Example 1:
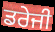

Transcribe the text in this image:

ਡਰੇਜੀ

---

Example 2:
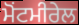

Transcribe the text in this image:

ਮੋਂਟਮੀਰੇਲ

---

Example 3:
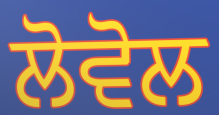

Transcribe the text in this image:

ਲੋਵੋਲ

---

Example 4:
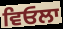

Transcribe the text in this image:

ਵਿਓਲਾ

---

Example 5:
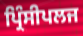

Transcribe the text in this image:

ਪ੍ਰਿੰਸੀਪਲਜ